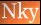
Nky